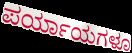
ಪರ್ಯಾಯಗಳೂ